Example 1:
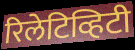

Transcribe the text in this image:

रिलेटिव्हिटी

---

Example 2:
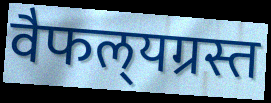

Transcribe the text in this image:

वैफल्यग्रस्त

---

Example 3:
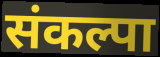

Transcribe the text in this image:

संकल्पा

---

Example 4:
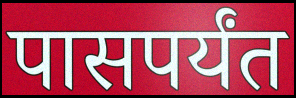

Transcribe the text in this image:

पासपर्यंत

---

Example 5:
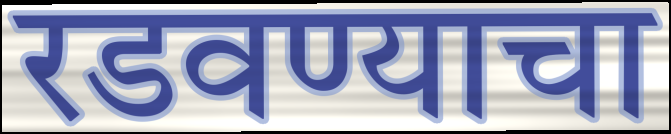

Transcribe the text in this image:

रडवण्याचा